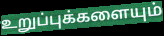
உறுப்புக்களையும்